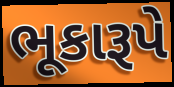
ભૂકારૂપે